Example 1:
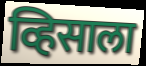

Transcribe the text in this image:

व्हिसाला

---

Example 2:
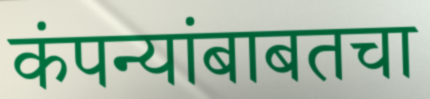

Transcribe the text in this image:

कंपन्यांबाबतचा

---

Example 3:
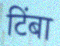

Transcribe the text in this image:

टिंबा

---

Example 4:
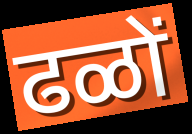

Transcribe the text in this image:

ढळों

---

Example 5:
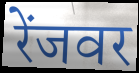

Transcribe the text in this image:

रेंजवर